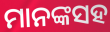
ମାନଙ୍କସହ